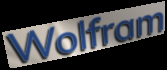
Wolfram